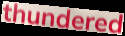
thundered